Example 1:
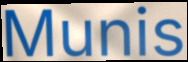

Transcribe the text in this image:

Munis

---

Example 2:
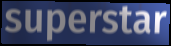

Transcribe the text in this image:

superstar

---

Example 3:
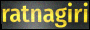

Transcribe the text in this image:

ratnagiri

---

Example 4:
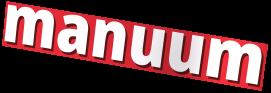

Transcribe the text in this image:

manuum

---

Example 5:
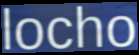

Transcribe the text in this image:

locho